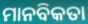
ମାନବିକତା